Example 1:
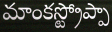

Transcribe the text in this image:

మాంకస్ట్రోప్పా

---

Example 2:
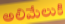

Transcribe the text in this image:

అలిమేలుకి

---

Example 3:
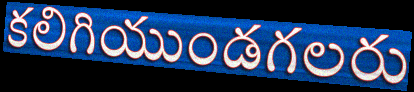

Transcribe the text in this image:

కలిగియుండగలరు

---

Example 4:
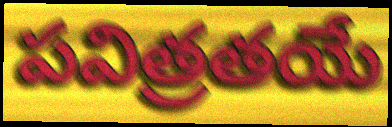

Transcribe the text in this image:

పవిత్రతయే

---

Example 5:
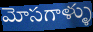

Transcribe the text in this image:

మోసగాళ్ళు